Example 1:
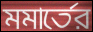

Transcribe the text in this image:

মমার্তের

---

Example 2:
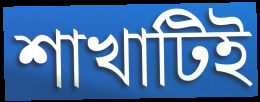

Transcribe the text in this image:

শাখাটিই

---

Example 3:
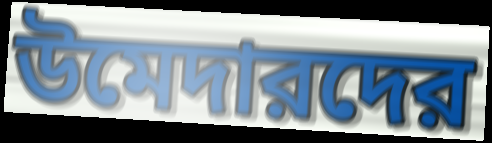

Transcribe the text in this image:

উমেদারদের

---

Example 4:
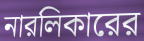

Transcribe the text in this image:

নারলিকারের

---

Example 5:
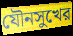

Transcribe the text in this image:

যৌনসুখের